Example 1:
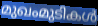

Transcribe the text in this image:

മുഖംമുടികൾ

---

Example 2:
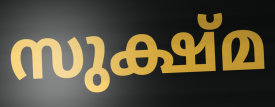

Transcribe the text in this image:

സുക്ഷ്മ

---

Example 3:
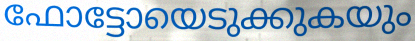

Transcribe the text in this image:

ഫോട്ടോയെടുക്കുകയും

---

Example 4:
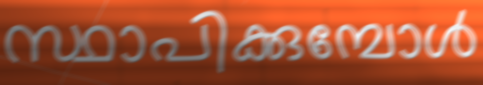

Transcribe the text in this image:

സ്ഥാപിക്കുമ്പോൾ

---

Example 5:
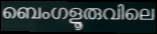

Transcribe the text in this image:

ബെംഗളൂരുവിലെ